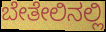
ಬೇತೇಲಿನಲ್ಲಿ